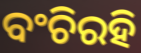
ବଂଚିରହି